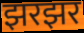
झरझर